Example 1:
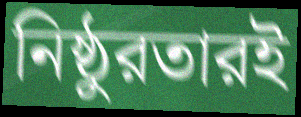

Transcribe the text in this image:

নিষ্ঠুরতারই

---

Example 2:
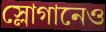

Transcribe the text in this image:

স্লোগানেও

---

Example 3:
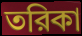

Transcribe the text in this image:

তরিকা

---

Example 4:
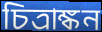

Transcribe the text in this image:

চিত্রাঙ্কন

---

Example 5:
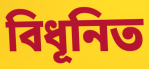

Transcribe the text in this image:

বিধূনিত